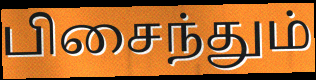
பிசைந்தும்